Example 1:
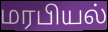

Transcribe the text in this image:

மரபியல்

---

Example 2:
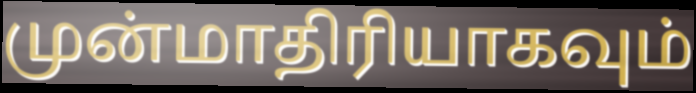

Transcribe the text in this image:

முன்மாதிரியாகவும்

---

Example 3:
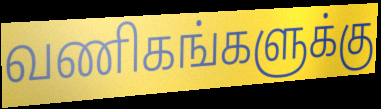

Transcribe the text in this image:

வணிகங்களுக்கு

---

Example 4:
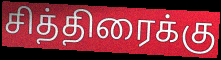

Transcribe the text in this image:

சித்திரைக்கு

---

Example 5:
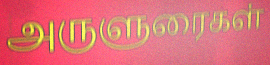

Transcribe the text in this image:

அருளுரைகள்